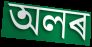
অলৰ